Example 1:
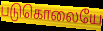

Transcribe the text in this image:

படுகொலையே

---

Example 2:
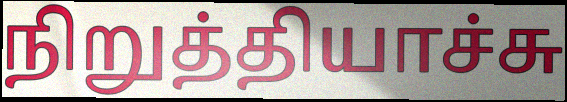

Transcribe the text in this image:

நிறுத்தியாச்சு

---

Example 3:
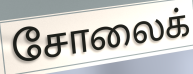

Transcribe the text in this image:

சோலைக்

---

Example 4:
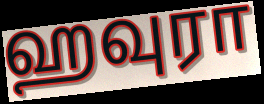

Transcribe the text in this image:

ஹவுரா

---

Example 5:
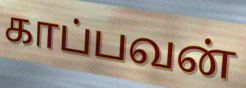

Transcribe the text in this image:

காப்பவன்